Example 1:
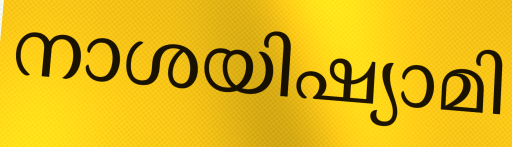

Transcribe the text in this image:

നാശയിഷ്യാമി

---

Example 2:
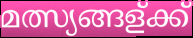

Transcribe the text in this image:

മത്സ്യങ്ങള്ക്ക്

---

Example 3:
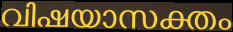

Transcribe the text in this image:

വിഷയാസക്തം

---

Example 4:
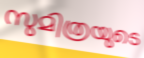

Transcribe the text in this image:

സുമിത്രയുടെ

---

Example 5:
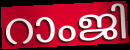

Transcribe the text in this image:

റാംജി